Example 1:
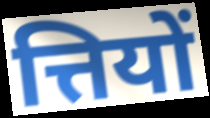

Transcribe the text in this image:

त्तियों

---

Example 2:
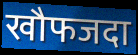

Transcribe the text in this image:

खौफजदा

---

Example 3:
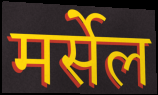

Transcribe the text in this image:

मर्सेल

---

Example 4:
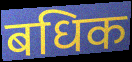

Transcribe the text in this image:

बधिक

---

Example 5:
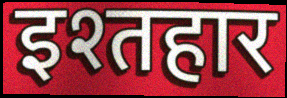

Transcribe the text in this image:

इश्तहार